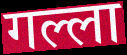
गल्ला